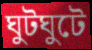
ঘুটঘুটে